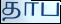
தாப